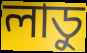
লাডু